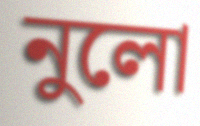
নুলো